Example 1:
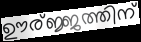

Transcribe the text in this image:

ഊര്ജ്ജത്തിന്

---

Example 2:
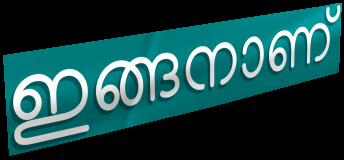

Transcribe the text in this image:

ഇങ്ങനാണ്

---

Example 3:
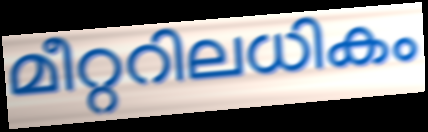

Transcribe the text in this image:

മീറ്ററിലധികം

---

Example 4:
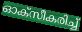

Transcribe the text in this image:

ഓക്സീകരിച്ച്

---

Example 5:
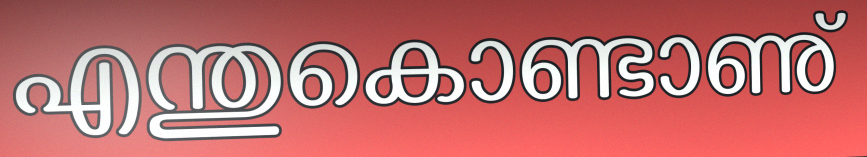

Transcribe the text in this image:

എന്തുകൊണ്ടാണു്